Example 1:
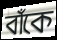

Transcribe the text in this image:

বাঁকে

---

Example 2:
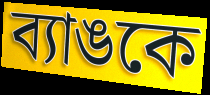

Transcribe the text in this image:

ব্যাঙকে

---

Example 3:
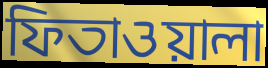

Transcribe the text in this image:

ফিতাওয়ালা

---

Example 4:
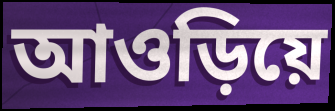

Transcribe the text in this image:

আওড়িয়ে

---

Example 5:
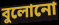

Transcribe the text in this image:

বুলোনো